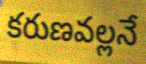
కరుణవల్లనే